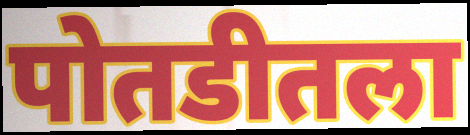
पोतडीतला